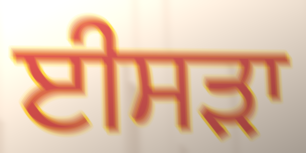
ਈਸੜਾ